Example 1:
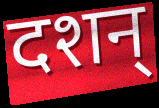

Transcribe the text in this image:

दशन्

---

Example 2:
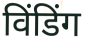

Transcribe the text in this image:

विंडिंग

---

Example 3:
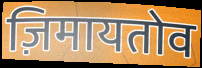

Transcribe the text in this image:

ज़िमायतोव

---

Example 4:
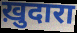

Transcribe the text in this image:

ख़ुदारा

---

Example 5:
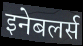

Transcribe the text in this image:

इनेबलर्स